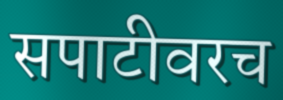
सपाटीवरच